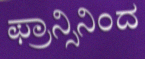
ಫ್ರಾನ್ಸಿನಿಂದ